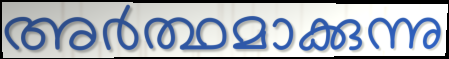
അർത്ഥമാക്കുന്നു